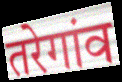
तरेगांव